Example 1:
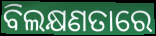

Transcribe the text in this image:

ବିଲକ୍ଷଣତାରେ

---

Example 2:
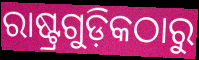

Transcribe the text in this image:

ରାଷ୍ଟ୍ରଗୁଡ଼ିକଠାରୁ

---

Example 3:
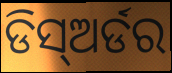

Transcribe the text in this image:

ଡିସ୍ଅର୍ଡର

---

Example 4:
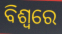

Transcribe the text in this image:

ବିଶ୍ଵରେ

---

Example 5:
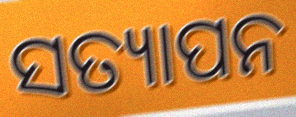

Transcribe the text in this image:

ସତ୍ୟାପନ